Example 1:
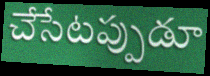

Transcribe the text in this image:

చేసేటప్పుడూ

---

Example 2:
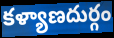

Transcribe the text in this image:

కళ్యాణదుర్గం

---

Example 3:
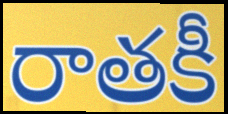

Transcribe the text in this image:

రాతకీ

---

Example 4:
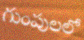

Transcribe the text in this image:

గుంపులలో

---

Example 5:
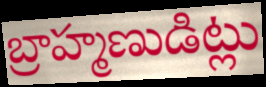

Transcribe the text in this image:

బ్రాహ్మణుడిట్లు